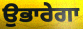
ਉਭਾਰੇਗਾ